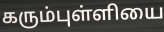
கரும்புள்ளியை